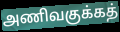
அணிவகுக்கத்